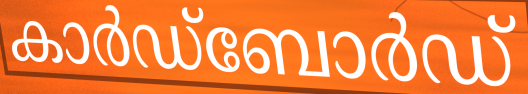
കാർഡ്ബോർഡ്